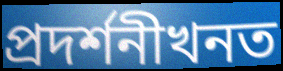
প্ৰদৰ্শনীখনত